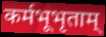
कर्मभूभृताम्